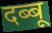
दब्बू